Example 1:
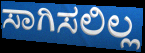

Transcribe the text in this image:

ಸಾಗಿಸಲಿಲ್ಲ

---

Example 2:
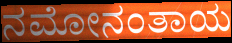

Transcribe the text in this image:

ನಮೋನಂತಾಯ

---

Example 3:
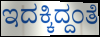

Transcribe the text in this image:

ಇದಕ್ಕಿದ್ದಂತೆ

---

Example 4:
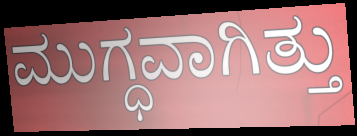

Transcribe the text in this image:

ಮುಗ್ಧವಾಗಿತ್ತು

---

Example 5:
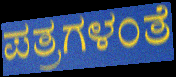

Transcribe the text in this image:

ಪತ್ರಗಳಂತೆ